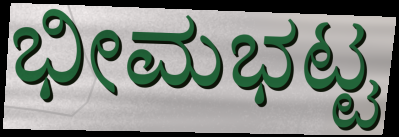
ಭೀಮಭಟ್ಟ